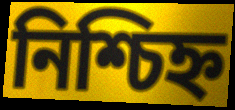
নিশ্চিহ্ন